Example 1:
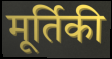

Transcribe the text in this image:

मूर्तिकी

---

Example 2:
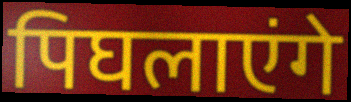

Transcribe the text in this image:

पिघलाएंगे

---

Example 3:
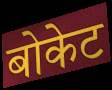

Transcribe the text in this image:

बोकेट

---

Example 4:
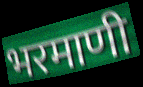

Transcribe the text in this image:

भरमाणी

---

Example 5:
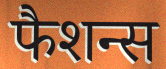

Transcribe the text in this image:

फैशन्स